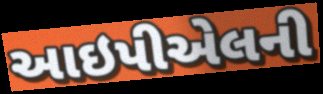
આઇપીએલની